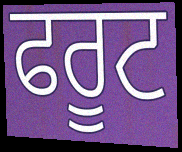
ਫਰੂਟ